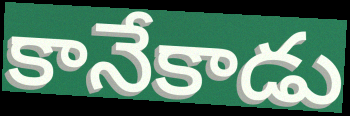
కానేకాడు